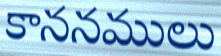
కాననములు